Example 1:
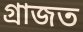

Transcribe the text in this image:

গ্ৰাজত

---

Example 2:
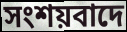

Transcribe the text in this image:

সংশয়বাদে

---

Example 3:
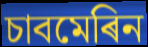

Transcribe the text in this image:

চাবমেৰিন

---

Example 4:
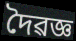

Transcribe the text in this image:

দৈৱজ্ঞ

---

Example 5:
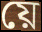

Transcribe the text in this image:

য়ে